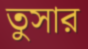
তুসার